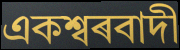
একশ্বৰবাদী